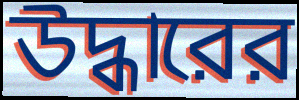
উদ্ধারের